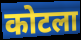
कोटला